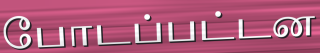
போடப்பட்டன